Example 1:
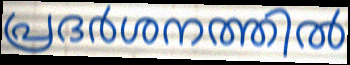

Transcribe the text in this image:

പ്രദർശനത്തിൽ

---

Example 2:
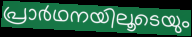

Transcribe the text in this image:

പ്രാർഥനയിലൂടെയും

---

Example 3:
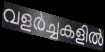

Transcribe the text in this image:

വളർച്ചകളിൽ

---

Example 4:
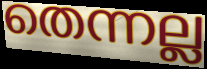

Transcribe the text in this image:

തെന്നല്ല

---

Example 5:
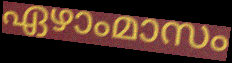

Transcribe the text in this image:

ഏഴാംമാസം